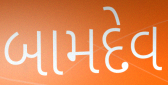
બામદેવ